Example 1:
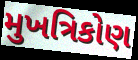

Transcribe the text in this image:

મુખત્રિકોણ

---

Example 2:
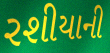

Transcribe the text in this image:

રશીયાની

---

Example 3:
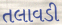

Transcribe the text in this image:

તલાવડી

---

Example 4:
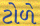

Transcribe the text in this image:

ટોળે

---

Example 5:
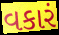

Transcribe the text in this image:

વકારં